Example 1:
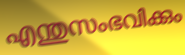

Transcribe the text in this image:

എന്തുസംഭവിക്കും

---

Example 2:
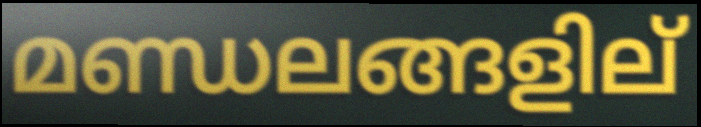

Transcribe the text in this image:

മണ്ഡലങ്ങളില്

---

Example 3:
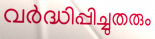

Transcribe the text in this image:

വർദ്ധിപ്പിച്ചുതരും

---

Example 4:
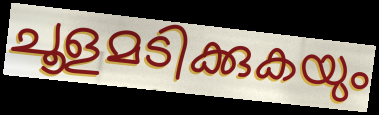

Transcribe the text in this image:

ചൂളമടിക്കുകയും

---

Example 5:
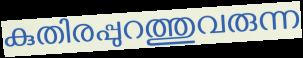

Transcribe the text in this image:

കുതിരപ്പുറത്തുവരുന്ന